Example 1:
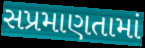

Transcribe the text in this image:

સપ્રમાણતામાં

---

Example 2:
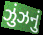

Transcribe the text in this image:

ઝુંઝનું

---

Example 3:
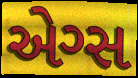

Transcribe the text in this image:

એગ્સ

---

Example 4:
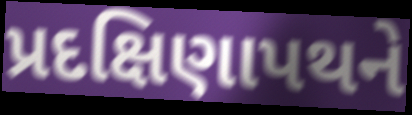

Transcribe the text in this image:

પ્રદક્ષિણાપથને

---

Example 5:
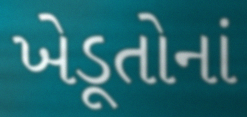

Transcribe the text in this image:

ખેડૂતોનાં